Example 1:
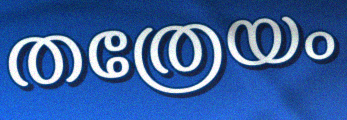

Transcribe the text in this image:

തത്രേയം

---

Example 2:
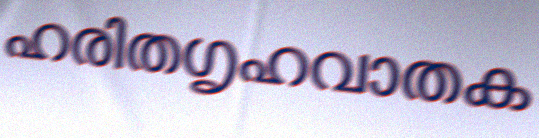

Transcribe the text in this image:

ഹരിതഗൃഹവാതക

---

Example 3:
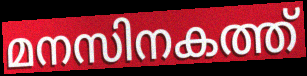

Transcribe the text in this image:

മനസിനകത്ത്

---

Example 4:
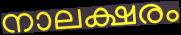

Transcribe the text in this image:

നാലക്ഷരം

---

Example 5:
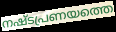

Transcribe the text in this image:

നഷ്ടപ്രണയത്തെ